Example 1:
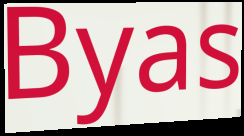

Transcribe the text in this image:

Byas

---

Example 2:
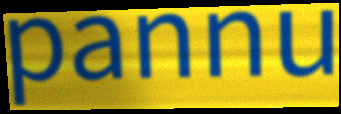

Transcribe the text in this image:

pannu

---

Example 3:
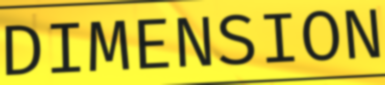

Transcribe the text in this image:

DIMENSION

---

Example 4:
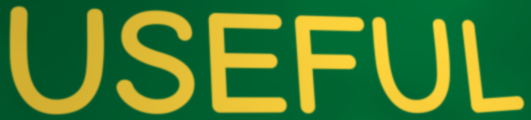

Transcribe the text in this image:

USEFUL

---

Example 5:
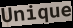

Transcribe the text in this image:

Unique